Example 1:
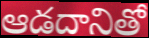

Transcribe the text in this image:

ఆడదానితో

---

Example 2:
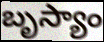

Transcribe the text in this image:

బృస్యాం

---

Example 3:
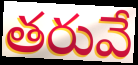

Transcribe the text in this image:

తరువే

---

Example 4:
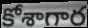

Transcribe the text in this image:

కోశాగార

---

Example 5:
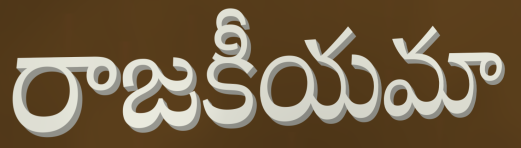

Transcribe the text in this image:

రాజకీయమా